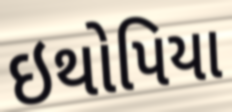
ઇથોપિયા